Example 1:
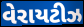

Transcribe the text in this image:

વેરાયટીઝ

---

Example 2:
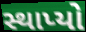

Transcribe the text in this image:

સ્થાપ્યો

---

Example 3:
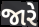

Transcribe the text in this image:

જારે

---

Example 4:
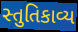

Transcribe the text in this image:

સ્તુતિકાવ્ય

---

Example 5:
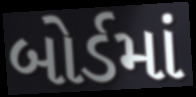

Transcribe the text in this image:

બોર્ડમાં